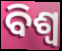
ବିଶ୍ୱ